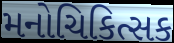
મનોચિકિત્સક